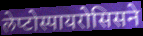
लेप्टोस्पायरोसिसने